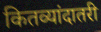
कितव्यांदातरी